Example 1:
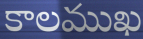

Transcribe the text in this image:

కాలముఖ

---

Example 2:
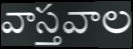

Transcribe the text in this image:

వాస్తవాల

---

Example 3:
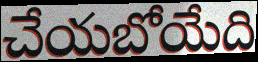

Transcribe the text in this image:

చేయబోయేది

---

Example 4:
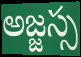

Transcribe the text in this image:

అజ్జస్స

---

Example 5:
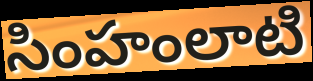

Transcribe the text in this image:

సింహంలాటి